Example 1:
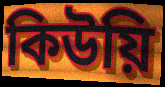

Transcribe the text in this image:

কিউয়ি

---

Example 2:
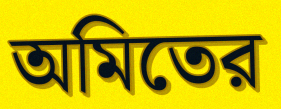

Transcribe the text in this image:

অমিতের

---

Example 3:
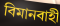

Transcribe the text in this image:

বিমানবাহী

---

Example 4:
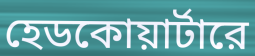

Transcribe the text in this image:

হেডকোয়ার্টারে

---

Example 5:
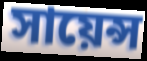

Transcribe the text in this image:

সায়েন্স